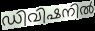
ഡിവിഷനിൽ